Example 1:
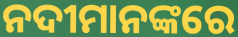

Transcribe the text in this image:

ନଦୀମାନଙ୍କରେ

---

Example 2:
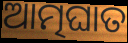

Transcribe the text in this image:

ଆତ୍ମଘାତ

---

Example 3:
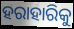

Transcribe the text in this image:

ହରାହାରିକୁ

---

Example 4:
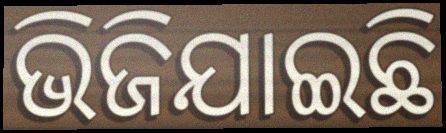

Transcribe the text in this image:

ଭିଜିଯାଇଛି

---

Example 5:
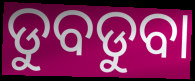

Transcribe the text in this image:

ଡୁବଡୁବା